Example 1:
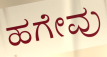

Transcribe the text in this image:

ಹಗೇವು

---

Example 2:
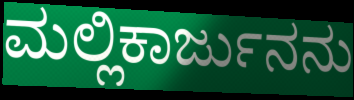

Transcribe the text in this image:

ಮಲ್ಲಿಕಾರ್ಜುನನು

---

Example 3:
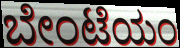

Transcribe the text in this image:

ಬೇಂಟೆಯಂ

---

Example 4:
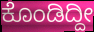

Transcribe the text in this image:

ಕೊಂಡಿದ್ದೀ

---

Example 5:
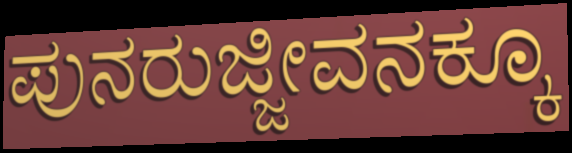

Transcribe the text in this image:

ಪುನರುಜ್ಜೀವನಕ್ಕೂ